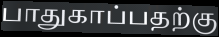
பாதுகாப்பதற்கு